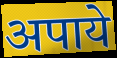
अपाये